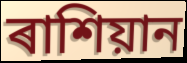
ৰাশিয়ান